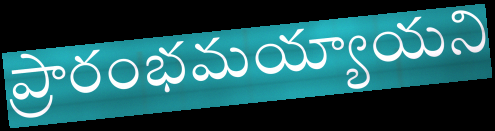
ప్రారంభమయ్యాయని